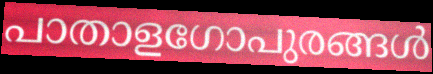
പാതാളഗോപുരങ്ങൾ